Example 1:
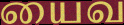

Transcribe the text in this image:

யைவ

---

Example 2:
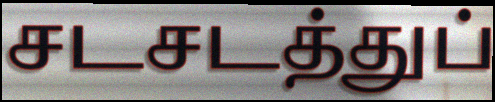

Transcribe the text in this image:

சடசடத்துப்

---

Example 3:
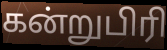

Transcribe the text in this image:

கன்றுபிரி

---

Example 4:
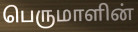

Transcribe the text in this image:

பெருமாளின்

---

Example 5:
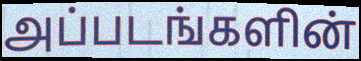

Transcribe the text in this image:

அப்படங்களின்